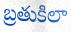
బ్రతుకిలా